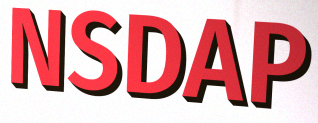
NSDAP